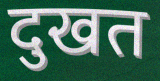
दुखत